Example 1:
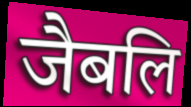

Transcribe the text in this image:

जैबलि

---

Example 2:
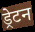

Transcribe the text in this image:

ड्रेटन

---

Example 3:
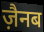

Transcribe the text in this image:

ज़ैनब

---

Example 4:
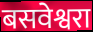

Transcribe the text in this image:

बसवेश्वरा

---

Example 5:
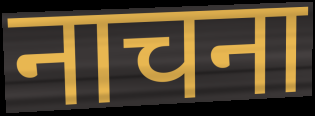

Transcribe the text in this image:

नाचना